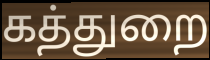
கத்துறை